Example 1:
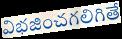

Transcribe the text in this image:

విభజించగలిగితే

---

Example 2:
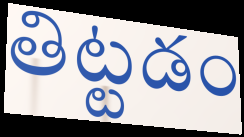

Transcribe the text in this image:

తిట్టడం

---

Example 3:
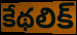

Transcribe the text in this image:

కేథలిక్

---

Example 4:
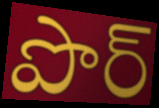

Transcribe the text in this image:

పొర్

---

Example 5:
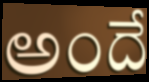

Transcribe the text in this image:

అందే